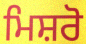
ਮਿਸ਼ਰੋ